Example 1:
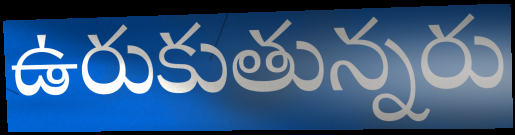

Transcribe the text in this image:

ఉరుకుతున్నరు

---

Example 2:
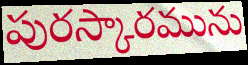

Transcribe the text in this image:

పురస్కారమును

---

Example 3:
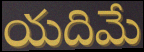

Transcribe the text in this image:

యదిమే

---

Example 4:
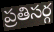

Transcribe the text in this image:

ప్రతిసర్గ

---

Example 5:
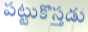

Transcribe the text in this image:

పట్టుకొస్తడు